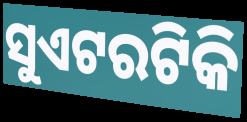
ସୁଏଟରଟିକି